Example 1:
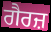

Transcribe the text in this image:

ਗੈਰਜ਼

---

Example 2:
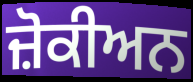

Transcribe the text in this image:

ਜ਼ੋਕੀਅਨ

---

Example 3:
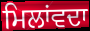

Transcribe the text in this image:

ਮਿਲਾਂਵਦਾ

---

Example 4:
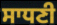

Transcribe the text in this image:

ਸਾਧਣੀ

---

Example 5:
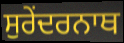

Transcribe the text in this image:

ਸੁਰੇਂਦਰਨਾਥ